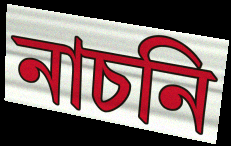
নাচনি